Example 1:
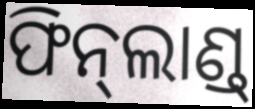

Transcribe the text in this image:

ଫିନ୍‌ଲାଣ୍ଡ୍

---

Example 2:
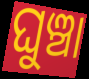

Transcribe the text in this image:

ଘୁଞ୍ଚା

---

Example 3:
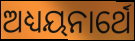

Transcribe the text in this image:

ଅଧ୍ୟୟନାର୍ଥେ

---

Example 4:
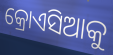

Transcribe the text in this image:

କ୍ରୋଏସିଆକୁ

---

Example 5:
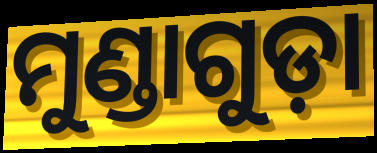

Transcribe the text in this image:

ମୁଣ୍ଡାଗୁଡ଼ା